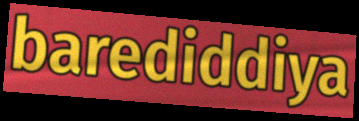
barediddiya